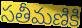
సతీమణికి